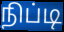
நிப்டி